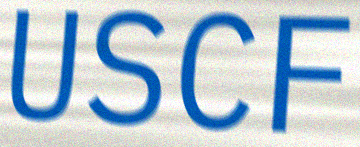
USCF